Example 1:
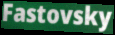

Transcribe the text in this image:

Fastovsky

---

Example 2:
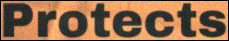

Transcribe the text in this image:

Protects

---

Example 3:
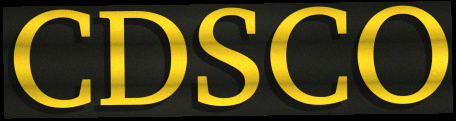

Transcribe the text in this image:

CDSCO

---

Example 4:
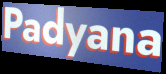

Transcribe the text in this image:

Padyana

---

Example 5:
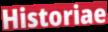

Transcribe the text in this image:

Historiae